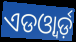
ଏଡଓ୍ବାର୍ଡ଼